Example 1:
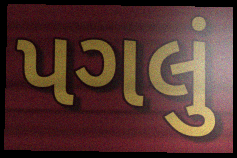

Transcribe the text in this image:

પગલું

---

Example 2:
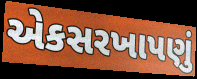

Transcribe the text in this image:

એકસરખાપણું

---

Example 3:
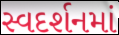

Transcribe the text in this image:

સ્વદર્શનમાં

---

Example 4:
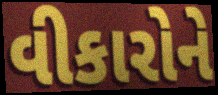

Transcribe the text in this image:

વીકારોને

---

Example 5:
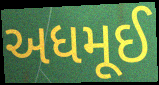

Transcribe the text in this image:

અધમૂઈ